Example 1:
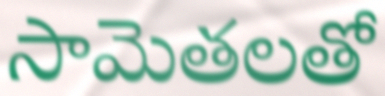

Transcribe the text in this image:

సామెతలతో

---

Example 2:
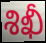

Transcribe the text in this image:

శిఖీ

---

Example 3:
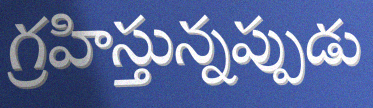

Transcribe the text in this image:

గ్రహిస్తున్నప్పుడు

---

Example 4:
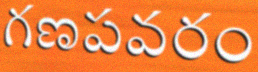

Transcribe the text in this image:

గణపవరం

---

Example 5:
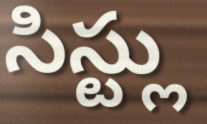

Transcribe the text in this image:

సిస్ట్లు